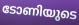
ടോണിയുടെ